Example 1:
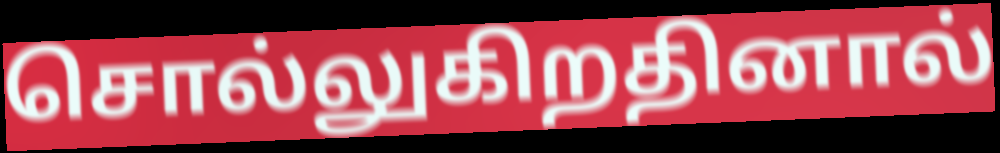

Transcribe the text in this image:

சொல்லுகிறதினால்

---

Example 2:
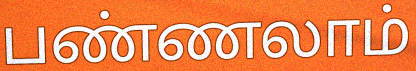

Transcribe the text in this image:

பண்ணலாம்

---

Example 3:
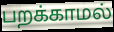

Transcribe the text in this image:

பறக்காமல்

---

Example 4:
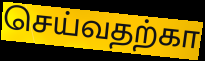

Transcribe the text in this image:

செய்வதற்கா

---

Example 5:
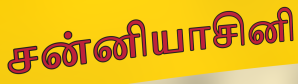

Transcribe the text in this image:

சன்னியாசினி